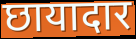
छायादार